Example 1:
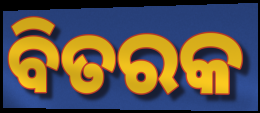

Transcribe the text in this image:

ବିତରକ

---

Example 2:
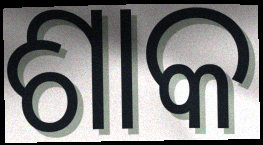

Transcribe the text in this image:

ଶାକ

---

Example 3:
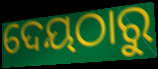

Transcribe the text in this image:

ଦେୟଠାରୁ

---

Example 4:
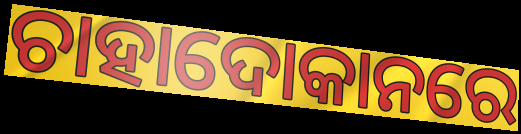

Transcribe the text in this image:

ଚାହାଦୋକାନରେ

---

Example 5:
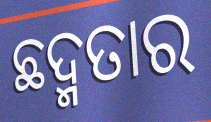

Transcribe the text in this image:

ଛଦ୍ମତାର